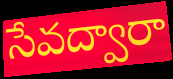
సేవద్వారా